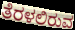
ತೆರಳಲಿರುವ